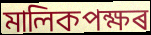
মালিকপক্ষৰ